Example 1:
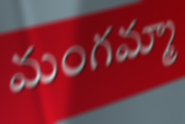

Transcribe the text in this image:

మంగమ్మా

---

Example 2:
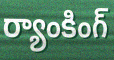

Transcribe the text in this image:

ర్యాంకింగ్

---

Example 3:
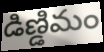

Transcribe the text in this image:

డిణ్డిమం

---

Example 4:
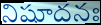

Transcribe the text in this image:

నిషూదనః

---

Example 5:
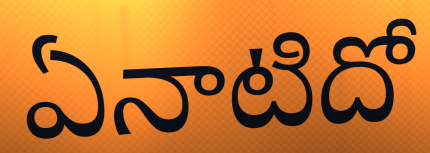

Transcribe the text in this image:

ఏనాటిదో